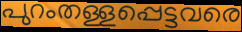
പുറംതള്ളപ്പെട്ടവരെ